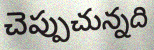
చెప్పుచున్నది